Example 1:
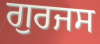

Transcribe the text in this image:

ਗੁਰਜਸ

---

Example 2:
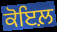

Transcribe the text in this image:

ਕੋਇਲ਼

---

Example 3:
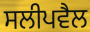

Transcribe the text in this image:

ਸਲੀਪਵੈਲ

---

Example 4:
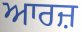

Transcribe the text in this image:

ਆਰਜ਼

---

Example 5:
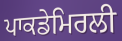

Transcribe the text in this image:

ਪਾਕਡੇਮਿਰਲੀ